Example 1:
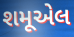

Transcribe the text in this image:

શમૂએલ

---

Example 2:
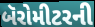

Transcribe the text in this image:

બૅરોમીટરની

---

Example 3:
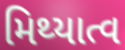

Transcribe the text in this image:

મિથ્યાત્વ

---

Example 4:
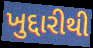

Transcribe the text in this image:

ખુદ્દારીથી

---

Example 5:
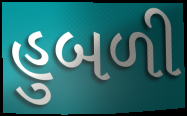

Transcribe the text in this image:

હુબળી